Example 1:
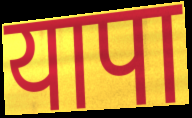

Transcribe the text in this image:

यापा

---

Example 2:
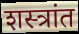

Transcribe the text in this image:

शस्त्रांत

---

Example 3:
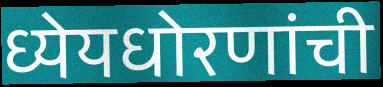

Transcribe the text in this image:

ध्येयधोरणांची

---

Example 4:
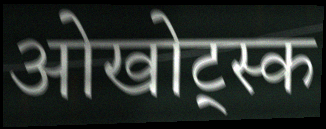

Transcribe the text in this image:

ओखोट्स्क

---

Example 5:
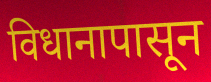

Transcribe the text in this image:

विधानापासून